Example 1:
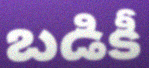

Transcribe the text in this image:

బడికీ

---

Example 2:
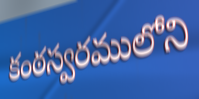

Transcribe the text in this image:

కంఠస్వరములోని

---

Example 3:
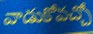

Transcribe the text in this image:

వాడుకోవచ్చో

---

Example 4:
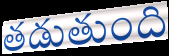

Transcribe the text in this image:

తడుతుంది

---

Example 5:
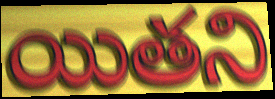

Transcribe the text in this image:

యితని